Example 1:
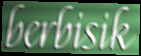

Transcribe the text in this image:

berbisik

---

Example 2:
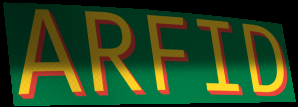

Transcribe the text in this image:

ARFID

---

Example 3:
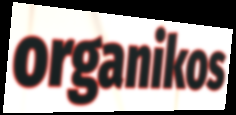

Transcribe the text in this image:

organikos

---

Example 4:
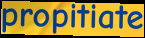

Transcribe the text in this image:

propitiate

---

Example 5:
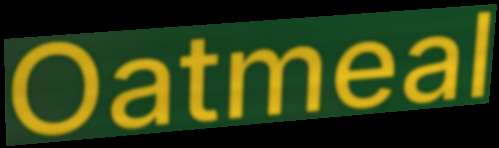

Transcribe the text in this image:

Oatmeal